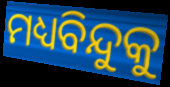
ମଧ୍ୟବିନ୍ଦୁକୁ